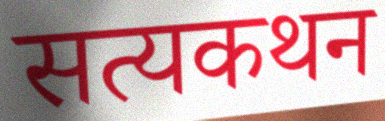
सत्यकथन